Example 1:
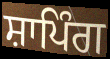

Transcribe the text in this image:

ਸ਼ਾਪਿੰਗ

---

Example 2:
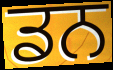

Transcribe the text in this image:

ਡਨ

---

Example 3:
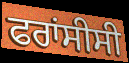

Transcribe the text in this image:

ਫਰਾਂਸੀਸੀ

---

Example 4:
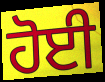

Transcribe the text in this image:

ਹੋਈ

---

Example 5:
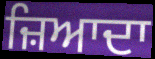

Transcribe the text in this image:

ਜ਼ਿਆਦਾ